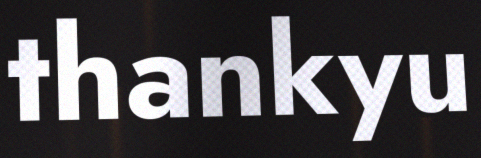
thankyu